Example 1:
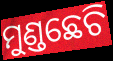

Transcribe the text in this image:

ମୁଣ୍ଡଛେଚି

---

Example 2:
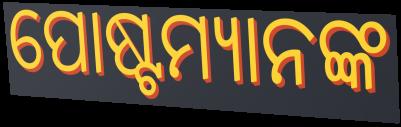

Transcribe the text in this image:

ପୋଷ୍ଟମ୍ୟାନଙ୍କ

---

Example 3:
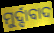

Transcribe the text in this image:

ମୁର୍ଦ୍ଦାବାଦ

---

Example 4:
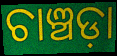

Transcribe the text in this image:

ଚାଞ୍ଚଡ଼ା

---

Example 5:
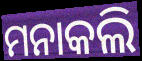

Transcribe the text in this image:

ମନାକଲି